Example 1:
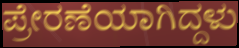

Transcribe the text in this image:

ಪ್ರೇರಣೆಯಾಗಿದ್ದಳು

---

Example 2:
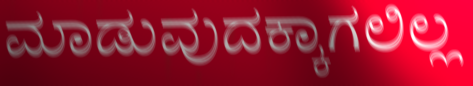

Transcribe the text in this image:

ಮಾಡುವುದಕ್ಕಾಗಲಿಲ್ಲ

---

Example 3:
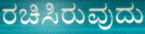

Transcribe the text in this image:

ರಚಿಸಿರುವುದು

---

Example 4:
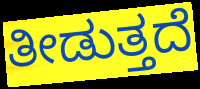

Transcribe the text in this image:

ತೀಡುತ್ತದೆ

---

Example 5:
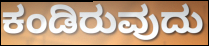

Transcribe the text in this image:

ಕಂಡಿರುವುದು